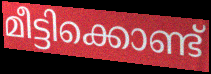
മീട്ടിക്കൊണ്ട്